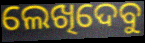
ଲେଖିଦେବୁ